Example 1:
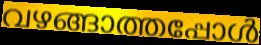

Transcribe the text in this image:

വഴങ്ങാത്തപ്പോൾ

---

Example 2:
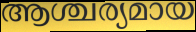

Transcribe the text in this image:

ആശ്ചര്യമായ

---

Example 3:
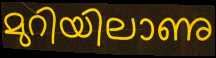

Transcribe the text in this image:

മുറിയിലാണു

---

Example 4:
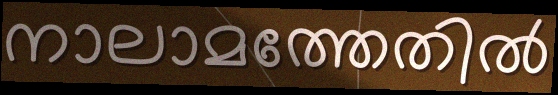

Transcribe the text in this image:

നാലാമത്തേതിൽ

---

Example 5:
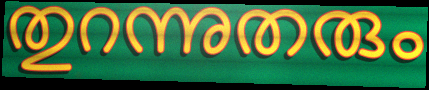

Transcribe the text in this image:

തുറന്നുതരും